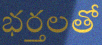
భర్తలతో